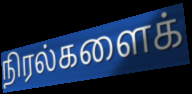
நிரல்களைக்